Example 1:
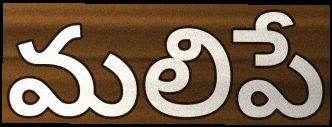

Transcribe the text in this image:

మలిపే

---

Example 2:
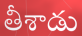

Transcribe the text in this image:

తీశాడు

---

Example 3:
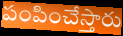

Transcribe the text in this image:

పంపించేస్తారు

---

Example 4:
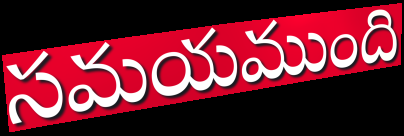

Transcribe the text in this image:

సమయముంది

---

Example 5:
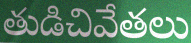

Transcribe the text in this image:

తుడిచివేతలు